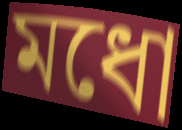
মধো